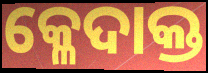
କ୍ଳେଦାକ୍ତ